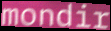
mondir